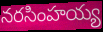
నరసింహయ్య